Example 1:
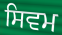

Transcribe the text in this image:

ਸਿਵਮ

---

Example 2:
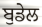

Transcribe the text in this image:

ਬੁਡੇਲ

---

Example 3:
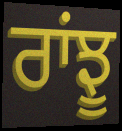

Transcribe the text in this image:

ਰਾਂਝੂ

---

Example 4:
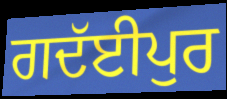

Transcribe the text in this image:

ਗਦੱਈਪੁਰ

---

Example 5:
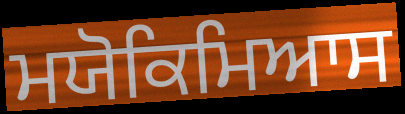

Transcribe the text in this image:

ਮਯੋਕਿਮਿਆਸ